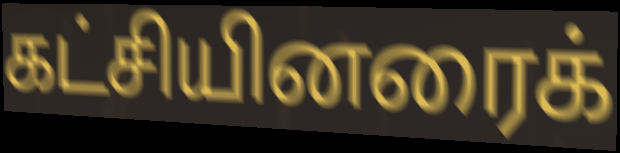
கட்சியினரைக்